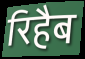
रिहैब